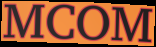
MCOM